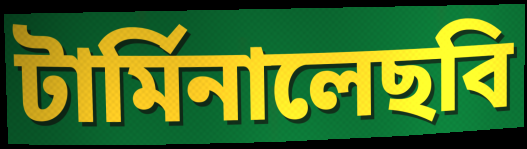
টার্মিনালেছবি